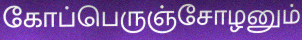
கோப்பெருஞ்சோழனும்